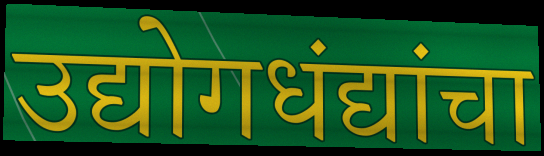
उद्योगधंद्यांचा